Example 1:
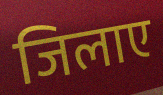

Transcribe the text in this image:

जिलाए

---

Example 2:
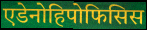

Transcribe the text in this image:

एडेनोहिपोफिसिस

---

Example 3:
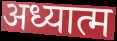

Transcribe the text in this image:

अध्यात्म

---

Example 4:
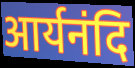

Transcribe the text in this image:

आर्यनंदि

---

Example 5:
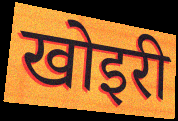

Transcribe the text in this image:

खोइरी